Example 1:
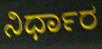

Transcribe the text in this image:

ನಿರ್ಧಾರ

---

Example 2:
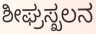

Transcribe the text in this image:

ಶೀಘ್ರಸ್ಖಲನ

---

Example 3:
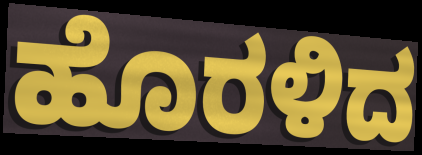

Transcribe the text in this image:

ಹೊರಳಿದ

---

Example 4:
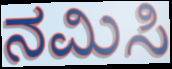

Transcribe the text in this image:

ನಮಿಸಿ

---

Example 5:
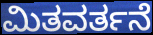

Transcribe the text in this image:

ಮಿತವರ್ತನೆ